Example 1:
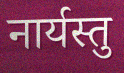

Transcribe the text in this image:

नार्यस्तु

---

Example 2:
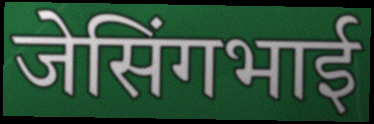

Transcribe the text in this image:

जेसिंगभाई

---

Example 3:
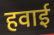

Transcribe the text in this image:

हवाई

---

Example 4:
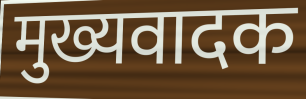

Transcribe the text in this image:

मुख्यवादक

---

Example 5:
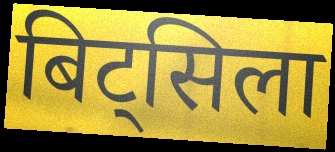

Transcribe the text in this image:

बिट्सिला